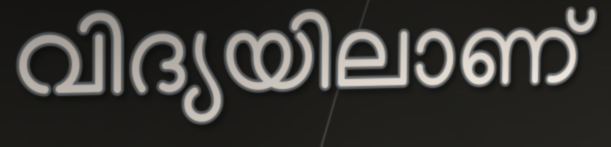
വിദ്യയിലാണ്